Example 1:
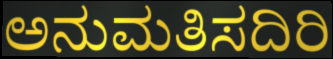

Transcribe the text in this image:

ಅನುಮತಿಸದಿರಿ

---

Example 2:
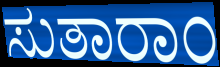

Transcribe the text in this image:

ಸುತಾರಾಂ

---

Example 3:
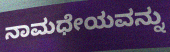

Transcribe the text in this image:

ನಾಮಧೇಯವನ್ನು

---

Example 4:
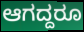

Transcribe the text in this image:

ಆಗದ್ದರೂ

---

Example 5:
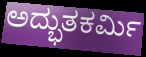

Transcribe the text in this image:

ಅದ್ಭುತಕರ್ಮಿ